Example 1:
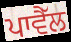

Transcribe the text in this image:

ਪਾਵੈੱਲ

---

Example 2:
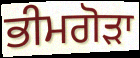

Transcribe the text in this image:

ਭੀਮਗੋੜਾ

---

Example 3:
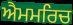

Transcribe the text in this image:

ਐਮਮਰਿਚ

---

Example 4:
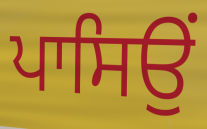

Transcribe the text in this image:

ਪਾਸਿਉਂ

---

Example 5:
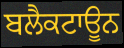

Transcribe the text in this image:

ਬਲੈਕਟਾਊਨ